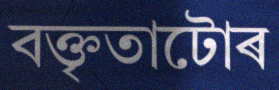
বক্তৃতাটোৰ